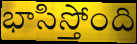
భాసిస్తోంది